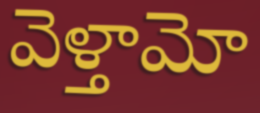
వెళ్తామో